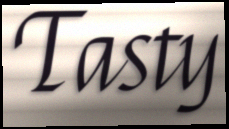
Tasty